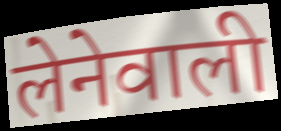
लेनेवाली